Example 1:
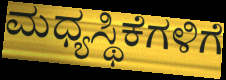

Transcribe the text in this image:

ಮಧ್ಯಸ್ಥಿಕೆಗಳಿಗೆ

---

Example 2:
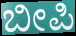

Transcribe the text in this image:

ಬೀಪಿ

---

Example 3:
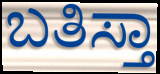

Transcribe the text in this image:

ಬತಿಸ್ತಾ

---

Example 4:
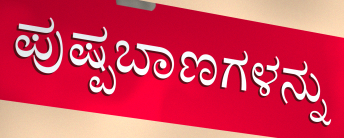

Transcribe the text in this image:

ಪುಷ್ಪಬಾಣಗಳನ್ನು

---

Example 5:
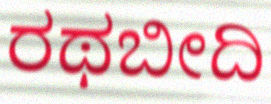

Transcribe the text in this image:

ರಥಬೀದಿ